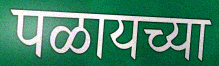
पळायच्या